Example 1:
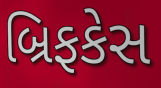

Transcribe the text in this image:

બ્રિફકેસ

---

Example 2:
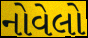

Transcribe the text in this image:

નોવેલો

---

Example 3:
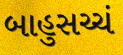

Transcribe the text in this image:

બાહુસચ્ચં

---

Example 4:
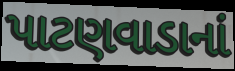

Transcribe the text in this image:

પાટણવાડાનાં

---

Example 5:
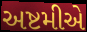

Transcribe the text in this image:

અષ્ટમીએ